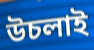
উচলাই